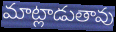
మాట్లాడుతావు